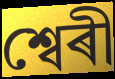
শ্বেৰী